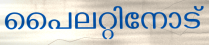
പൈലറ്റിനോട്